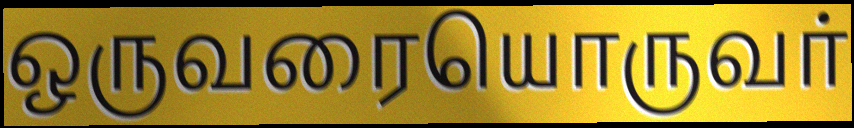
ஒருவரையொருவர்